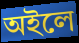
অইলে